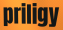
priligy